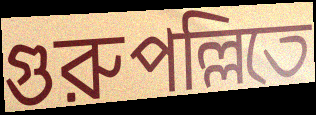
গুরুপল্লিতে